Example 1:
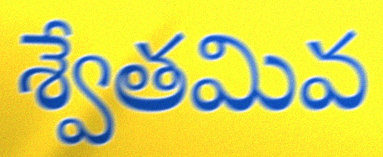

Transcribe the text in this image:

శ్వేతమివ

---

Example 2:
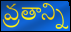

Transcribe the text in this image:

వ్రతాన్ని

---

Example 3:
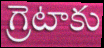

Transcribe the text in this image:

గ్రెటాకు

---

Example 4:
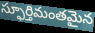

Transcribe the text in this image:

స్ఫూర్తిమంతమైన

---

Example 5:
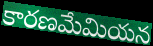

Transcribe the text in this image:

కారణమేమియన